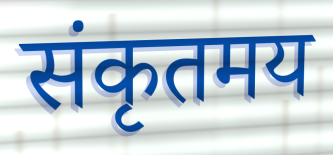
संकृतमय